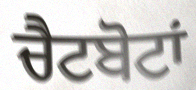
ਚੈਟਬੋਟਾਂ